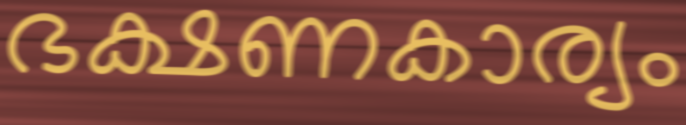
ഭക്ഷണകാര്യം